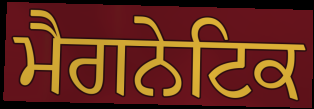
ਮੈਗਨੇਟਿਕ